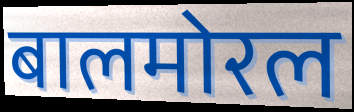
बालमोरल